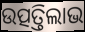
ଉତ୍ପତ୍ତିଲାଭ